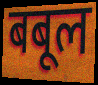
बबूल